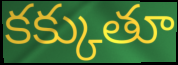
కక్కుతూ